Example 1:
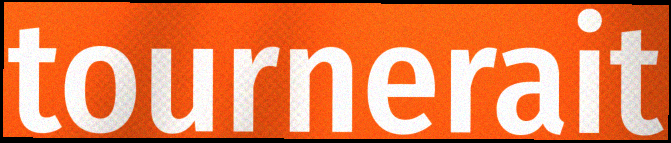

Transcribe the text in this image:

tournerait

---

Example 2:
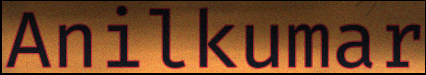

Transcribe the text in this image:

Anilkumar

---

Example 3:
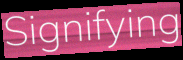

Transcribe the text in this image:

Signifying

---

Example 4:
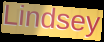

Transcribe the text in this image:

Lindsey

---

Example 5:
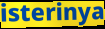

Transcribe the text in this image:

isterinya